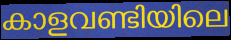
കാളവണ്ടിയിലെ